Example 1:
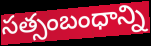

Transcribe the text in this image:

సత్సంబంధాన్ని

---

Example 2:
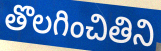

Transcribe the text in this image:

తొలగించితిని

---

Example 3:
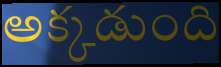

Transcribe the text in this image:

అక్కడుంది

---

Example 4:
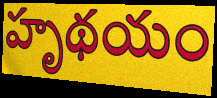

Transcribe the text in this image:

హృథయం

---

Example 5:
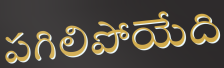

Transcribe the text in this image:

పగిలిపోయేది